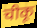
चीकू